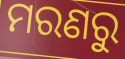
ମରଣରୁ